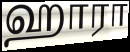
ஹாரா